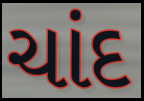
ચાંદ